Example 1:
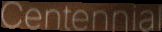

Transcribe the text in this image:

Centennial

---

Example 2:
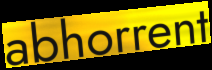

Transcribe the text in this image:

abhorrent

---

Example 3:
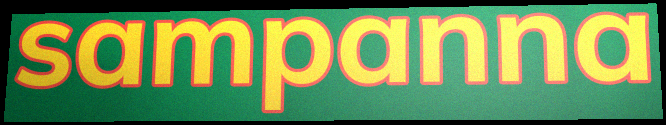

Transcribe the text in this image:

sampanna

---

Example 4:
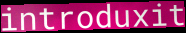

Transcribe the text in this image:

introduxit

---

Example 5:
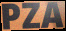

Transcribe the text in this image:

PZA